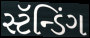
સ્ટૅન્ડિંગ